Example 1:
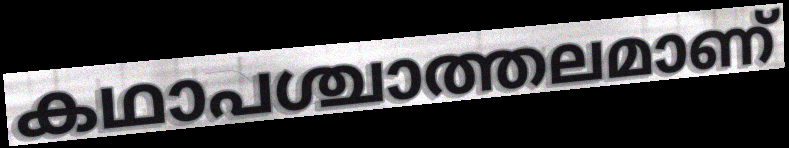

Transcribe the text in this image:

കഥാപശ്ചാത്തലമാണ്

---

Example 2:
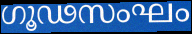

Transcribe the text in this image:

ഗൂഢസംഘം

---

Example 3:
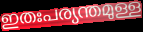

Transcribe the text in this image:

ഇതഃപര്യന്തമുള്ള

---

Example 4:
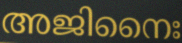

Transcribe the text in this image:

അജിനൈഃ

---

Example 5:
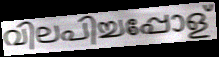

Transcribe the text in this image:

വിലപിച്ചപ്പോള്